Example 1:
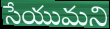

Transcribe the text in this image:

సేయుమని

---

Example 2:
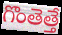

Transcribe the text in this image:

గొంతెత్తే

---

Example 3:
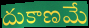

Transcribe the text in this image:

దుకాణమే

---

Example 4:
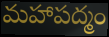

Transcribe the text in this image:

మహాపద్మం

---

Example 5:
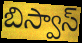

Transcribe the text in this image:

బిస్వాస్